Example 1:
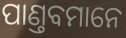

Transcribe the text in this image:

ପାଣ୍ତବମାନେ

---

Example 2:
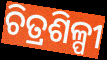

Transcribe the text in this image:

ଚିତ୍ରଶିଳ୍ପୀ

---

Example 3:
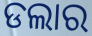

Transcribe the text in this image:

ଡଲାର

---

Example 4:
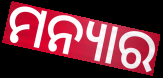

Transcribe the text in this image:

ମନ୍ୟାର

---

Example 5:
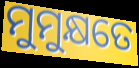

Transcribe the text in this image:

ମୁମୁକ୍ଷତେ